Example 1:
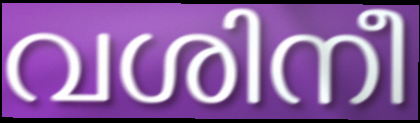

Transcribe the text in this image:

വശിനീ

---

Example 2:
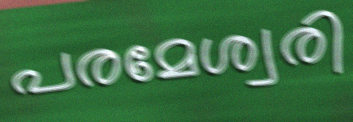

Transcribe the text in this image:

പരമേശ്വരി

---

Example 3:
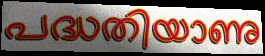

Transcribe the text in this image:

പദ്ധതിയാണു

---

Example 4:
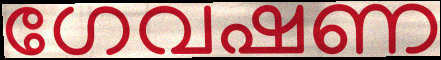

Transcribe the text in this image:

ഗേവഷണ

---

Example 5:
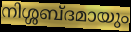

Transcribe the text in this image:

നിശ്ശബ്ദമായും